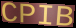
CPIB